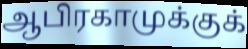
ஆபிரகாமுக்குக்